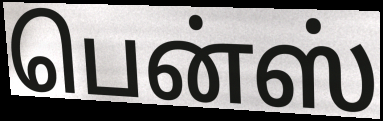
பென்ஸ்